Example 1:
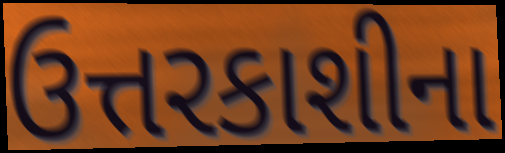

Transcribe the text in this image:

ઉત્તરકાશીના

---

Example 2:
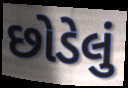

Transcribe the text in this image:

છોડેલું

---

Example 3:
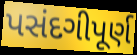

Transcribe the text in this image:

પસંદગીપૂર્ણ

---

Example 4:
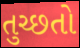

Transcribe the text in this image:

તુચ્છતો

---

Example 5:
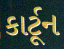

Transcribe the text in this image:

કાર્ટૂન